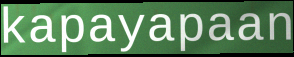
kapayapaan